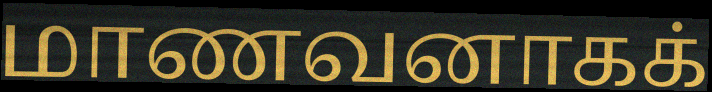
மாணவனாகக்